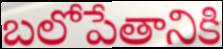
బలోపేతానికి